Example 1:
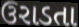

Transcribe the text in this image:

ઉરાડતા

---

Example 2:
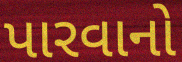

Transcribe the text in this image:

પારવાનો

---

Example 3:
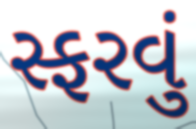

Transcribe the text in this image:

સ્ફરવું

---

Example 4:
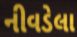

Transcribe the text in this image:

નીવડેલા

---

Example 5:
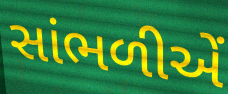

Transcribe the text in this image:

સાંભળીએં